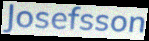
Josefsson